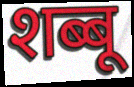
शब्बू